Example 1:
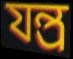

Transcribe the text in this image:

যন্ত্র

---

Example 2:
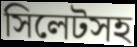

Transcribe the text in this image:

সিলেটসহ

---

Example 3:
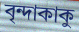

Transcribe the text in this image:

বৃন্দাকাকু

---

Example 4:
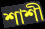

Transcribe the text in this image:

শাশী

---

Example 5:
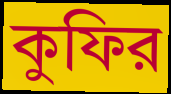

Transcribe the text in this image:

কুফির